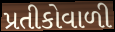
પ્રતીકોવાળી